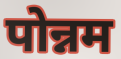
पोन्नम